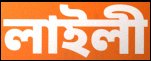
লাইলী